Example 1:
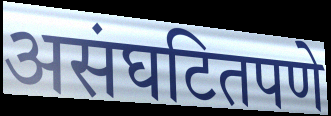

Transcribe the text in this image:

असंघटितपणे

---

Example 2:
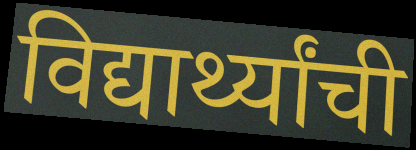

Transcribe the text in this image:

विद्यार्थ्यांची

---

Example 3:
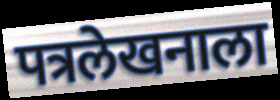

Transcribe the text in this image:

पत्रलेखनाला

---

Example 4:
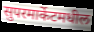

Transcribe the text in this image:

सुपरमार्केटमधील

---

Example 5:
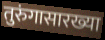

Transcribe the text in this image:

तुरुंगासारख्या